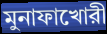
মুনাফাখোরী